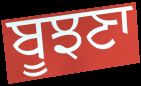
ਬੂਝਣਾ